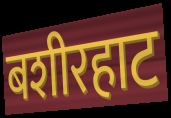
बशीरहाट